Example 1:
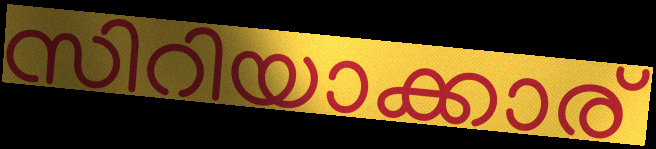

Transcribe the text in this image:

സിറിയാക്കാര്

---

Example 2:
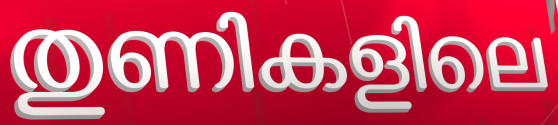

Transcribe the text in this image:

തുണികളിലെ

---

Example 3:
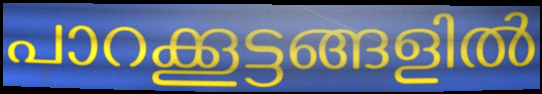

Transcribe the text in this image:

പാറക്കൂട്ടങ്ങളിൽ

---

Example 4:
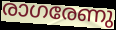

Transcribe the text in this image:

രാഗരേണു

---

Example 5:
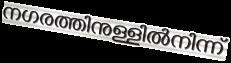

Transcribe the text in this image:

നഗരത്തിനുള്ളിൽനിന്ന്